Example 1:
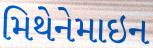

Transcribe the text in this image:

મિથેનેમાઇન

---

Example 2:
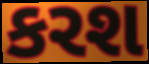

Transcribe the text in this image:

કરશ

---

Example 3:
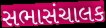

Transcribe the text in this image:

સભાસંચાલક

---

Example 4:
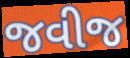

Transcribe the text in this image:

જવીજ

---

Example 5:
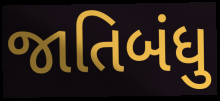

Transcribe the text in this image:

જાતિબંધુ